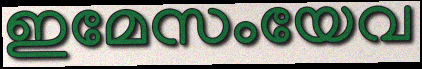
ഇമേസംയേവ